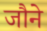
जौने